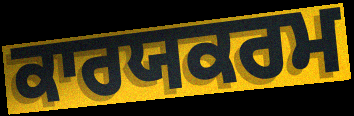
ਕਾਰਯਕਰਮ